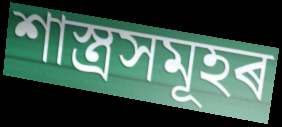
শাস্ত্ৰসমূহৰ